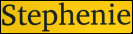
Stephenie